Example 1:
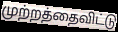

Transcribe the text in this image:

முற்றத்தைவிட்டு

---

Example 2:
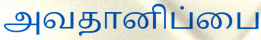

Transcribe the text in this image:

அவதானிப்பை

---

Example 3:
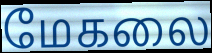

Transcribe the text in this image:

மேகலை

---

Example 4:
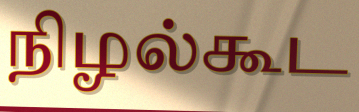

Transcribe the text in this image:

நிழல்கூட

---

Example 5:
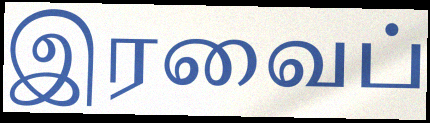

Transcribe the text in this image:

இரவைப்